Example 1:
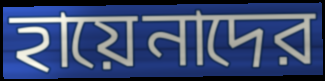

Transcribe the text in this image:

হায়েনাদের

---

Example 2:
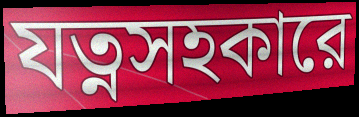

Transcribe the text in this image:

যত্নসহকারে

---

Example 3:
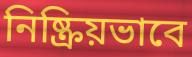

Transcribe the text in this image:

নিষ্ক্রিয়ভাবে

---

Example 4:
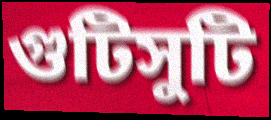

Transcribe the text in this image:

গুটিসুটি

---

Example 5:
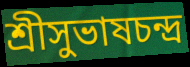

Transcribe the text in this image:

শ্রীসুভাষচন্দ্র